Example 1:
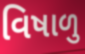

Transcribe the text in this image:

વિષાળુ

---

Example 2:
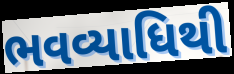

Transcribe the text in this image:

ભવવ્યાધિથી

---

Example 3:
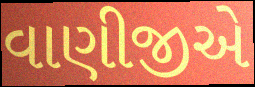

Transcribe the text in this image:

વાણીજીએ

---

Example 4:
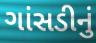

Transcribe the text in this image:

ગાંસડીનું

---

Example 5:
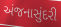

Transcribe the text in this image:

અંજનાસુંદરી